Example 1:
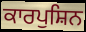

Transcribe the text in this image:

ਕਾਰਪੁਸ਼ਿਨ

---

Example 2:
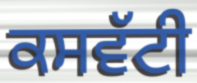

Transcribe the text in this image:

ਕਸਵੱਟੀ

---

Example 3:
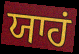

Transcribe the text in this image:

ਯਾਹਂ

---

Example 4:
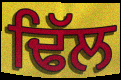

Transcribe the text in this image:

ਢਿੱਲ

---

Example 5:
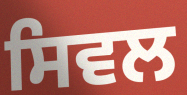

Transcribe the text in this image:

ਸਿਵਲ